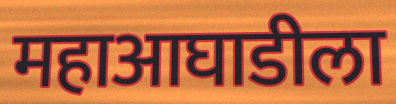
महाआघाडीला